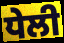
ਧੇਲੀ